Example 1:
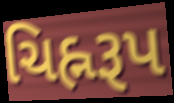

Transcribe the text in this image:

ચિહ્નરૂપ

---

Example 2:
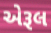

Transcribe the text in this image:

એરૂલ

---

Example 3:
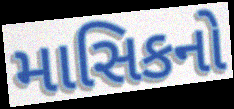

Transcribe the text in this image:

માસિકનો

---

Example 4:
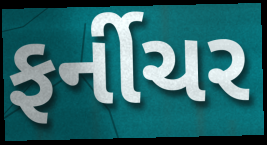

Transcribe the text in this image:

ફર્નીચર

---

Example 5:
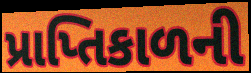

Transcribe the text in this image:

પ્રાપ્તિકાળની